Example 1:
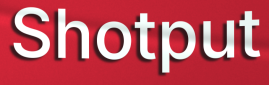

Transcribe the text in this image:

Shotput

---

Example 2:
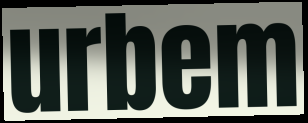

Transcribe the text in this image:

urbem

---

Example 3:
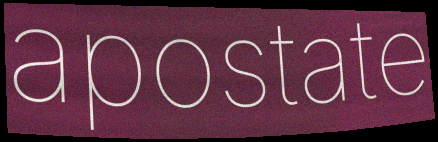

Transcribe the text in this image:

apostate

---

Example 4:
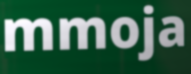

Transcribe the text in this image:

mmoja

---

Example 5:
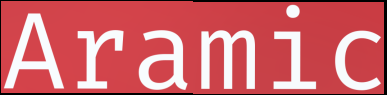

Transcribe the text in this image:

Aramic